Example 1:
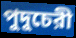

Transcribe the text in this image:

পুদুচেরী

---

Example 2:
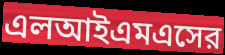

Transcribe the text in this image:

এলআইএমএসের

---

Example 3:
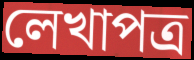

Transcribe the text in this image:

লেখাপত্র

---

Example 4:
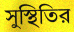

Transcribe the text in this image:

সুস্থিতির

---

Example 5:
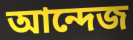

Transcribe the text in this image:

আন্দেজ